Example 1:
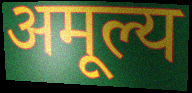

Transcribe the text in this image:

अमूल्‍य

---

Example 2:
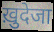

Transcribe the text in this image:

ख़ुदेजा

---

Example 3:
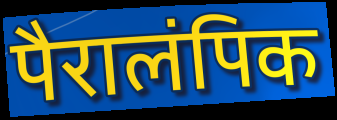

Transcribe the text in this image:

पैरालंपिक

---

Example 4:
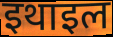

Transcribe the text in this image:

इथाइल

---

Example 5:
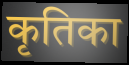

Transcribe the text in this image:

कृतिका